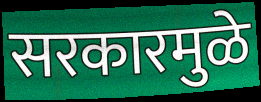
सरकारमुळे